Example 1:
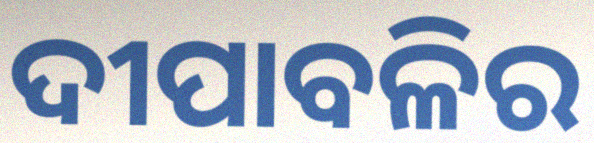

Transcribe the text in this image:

ଦୀପାବଳିର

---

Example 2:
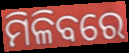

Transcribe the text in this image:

ମିଳିବରେ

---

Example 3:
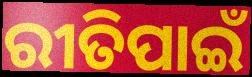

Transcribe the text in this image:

ରୀତିପାଇଁ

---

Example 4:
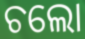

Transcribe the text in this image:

ଚଲୋ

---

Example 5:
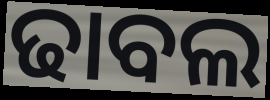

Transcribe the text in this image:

ଢାବଲ